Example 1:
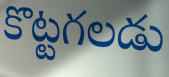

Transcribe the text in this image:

కొట్టగలడు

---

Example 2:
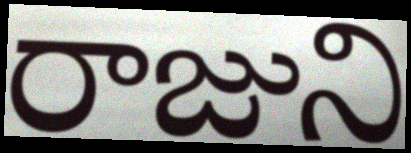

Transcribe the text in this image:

రాజుని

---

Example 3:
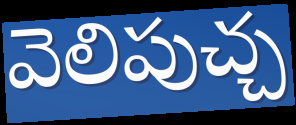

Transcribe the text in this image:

వెలిపుచ్చ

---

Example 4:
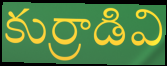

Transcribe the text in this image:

కుర్రాడివి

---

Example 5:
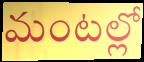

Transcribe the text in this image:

మంటల్లో